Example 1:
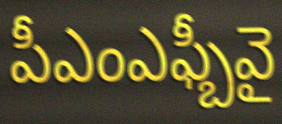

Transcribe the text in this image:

పీఎంఎఫ్బీవై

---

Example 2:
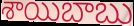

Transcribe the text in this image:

శాయిబాబు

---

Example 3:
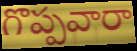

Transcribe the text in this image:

గొప్పవారా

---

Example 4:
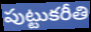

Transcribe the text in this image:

పుట్టుకరీతి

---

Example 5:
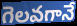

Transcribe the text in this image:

గెలవగానే